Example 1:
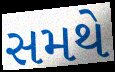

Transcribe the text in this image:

સમથે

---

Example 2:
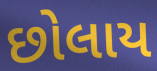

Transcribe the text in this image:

છોલાય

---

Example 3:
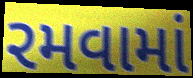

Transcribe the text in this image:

રમવામાં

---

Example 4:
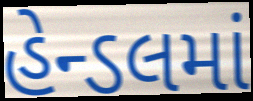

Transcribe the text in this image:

હેન્ડલમાં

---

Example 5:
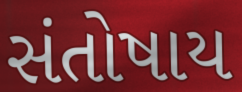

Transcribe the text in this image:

સંતોષાય